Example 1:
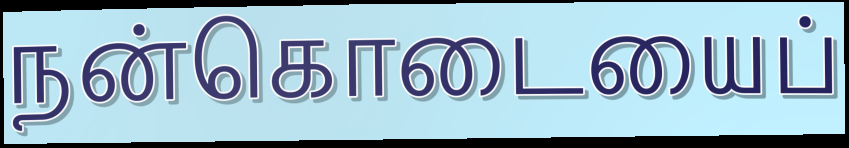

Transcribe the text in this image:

நன்கொடையைப்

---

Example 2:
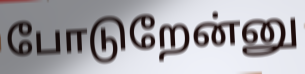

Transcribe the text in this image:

போடுறேன்னு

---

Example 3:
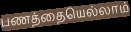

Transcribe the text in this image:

பணத்தையெல்லாம்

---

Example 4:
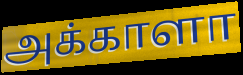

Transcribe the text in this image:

அக்காளா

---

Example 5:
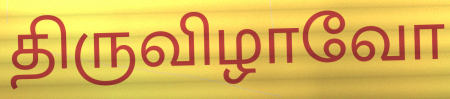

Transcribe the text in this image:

திருவிழாவோ